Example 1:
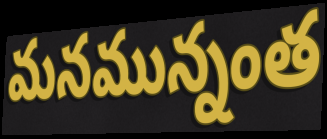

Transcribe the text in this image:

మనమున్నంత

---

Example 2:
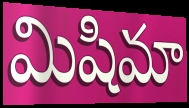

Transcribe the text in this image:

మిషిమా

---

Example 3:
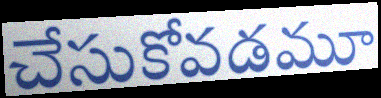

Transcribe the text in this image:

చేసుకోవడమూ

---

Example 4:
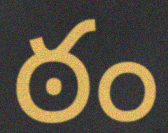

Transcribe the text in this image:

ఠం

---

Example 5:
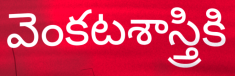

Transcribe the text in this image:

వెంకటశాస్త్రికి